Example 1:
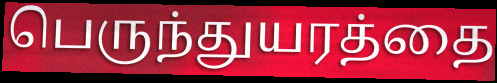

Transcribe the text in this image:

பெருந்துயரத்தை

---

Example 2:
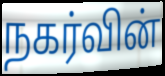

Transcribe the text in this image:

நகர்வின்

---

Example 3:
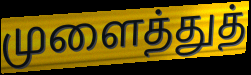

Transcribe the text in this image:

முளைத்துத்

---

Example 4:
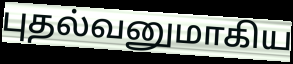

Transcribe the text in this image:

புதல்வனுமாகிய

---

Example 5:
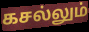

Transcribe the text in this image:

கசல்லும்